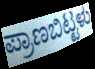
ಪ್ರಾಣಬಿಟ್ಟಳು